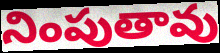
నింపుతావు